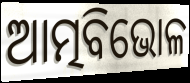
ଆତ୍ମବିଭୋଳ